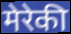
मेरेकी